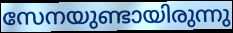
സേനയുണ്ടായിരുന്നു